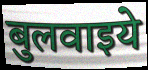
बुलवाइये